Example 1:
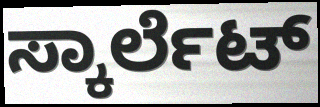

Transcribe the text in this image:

ಸ್ಕಾರ್ಲೆಟ್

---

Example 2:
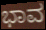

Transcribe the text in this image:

ಭಾವ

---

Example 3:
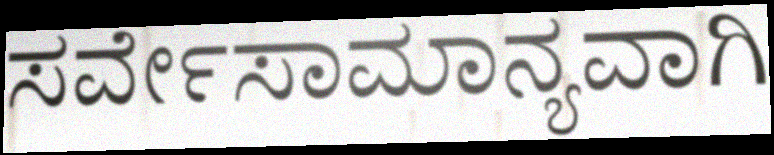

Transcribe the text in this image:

ಸರ್ವೇಸಾಮಾನ್ಯವಾಗಿ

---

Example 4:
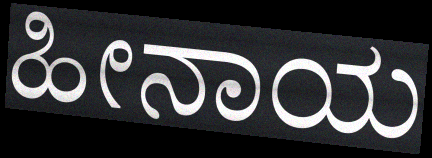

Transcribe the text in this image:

ಹೀನಾಯ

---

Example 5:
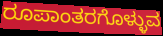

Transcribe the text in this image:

ರೂಪಾಂತರಗೊಳ್ಳುವ